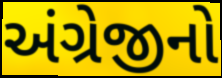
અંગ્રેજીનો